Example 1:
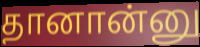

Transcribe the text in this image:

தானான்னு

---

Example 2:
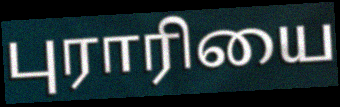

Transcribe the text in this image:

புராரியை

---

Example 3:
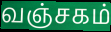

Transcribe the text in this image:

வஞ்சகம்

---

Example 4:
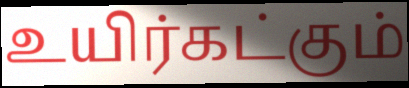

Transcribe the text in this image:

உயிர்கட்கும்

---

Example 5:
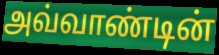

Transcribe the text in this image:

அவ்வாண்டின்